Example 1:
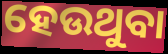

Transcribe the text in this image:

ହେଉଥୁବା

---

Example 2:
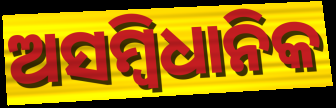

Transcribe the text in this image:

ଅସମ୍ବିଧାନିକ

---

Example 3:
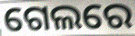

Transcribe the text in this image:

ଗେଲରେ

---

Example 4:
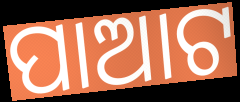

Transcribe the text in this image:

ପାଆଟ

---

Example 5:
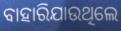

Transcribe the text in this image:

ବାହାରିଯାଉଥିଲେ